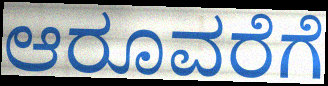
ಆರೂವರೆಗೆ